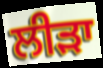
ਲੀੜਾ